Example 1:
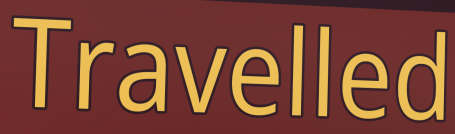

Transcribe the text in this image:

Travelled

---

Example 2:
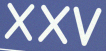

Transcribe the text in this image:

XXV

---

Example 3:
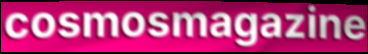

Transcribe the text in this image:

cosmosmagazine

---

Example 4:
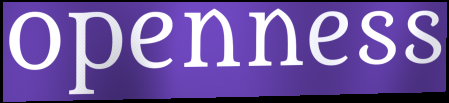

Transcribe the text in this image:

openness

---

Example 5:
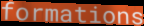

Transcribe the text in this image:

formations